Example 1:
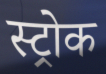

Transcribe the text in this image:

स्ट्रोक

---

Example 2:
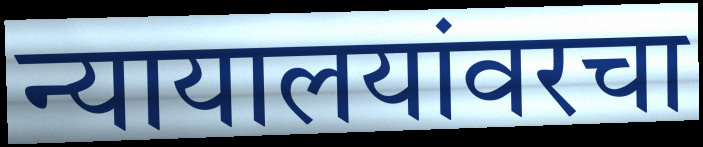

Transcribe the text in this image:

न्यायालयांवरचा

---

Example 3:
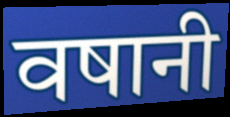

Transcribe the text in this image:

वषानी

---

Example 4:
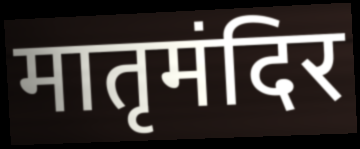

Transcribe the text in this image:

मातृमंदिर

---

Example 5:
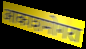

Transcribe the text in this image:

आकाशमोगरा